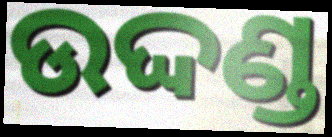
ଉଦ୍ଦଣ୍ଡ